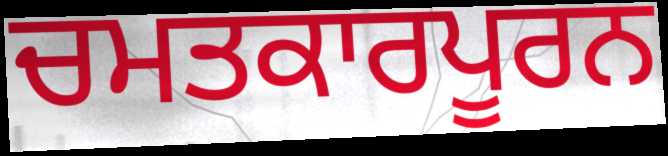
ਚਮਤਕਾਰਪੂਰਨ